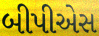
બીપીએસ